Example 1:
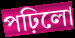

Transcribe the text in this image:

পঢ়িলো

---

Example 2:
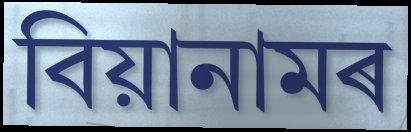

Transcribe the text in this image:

বিয়ানামৰ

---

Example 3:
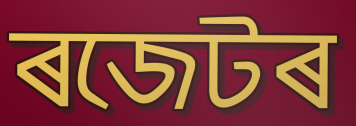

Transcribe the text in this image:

ৰজেটৰ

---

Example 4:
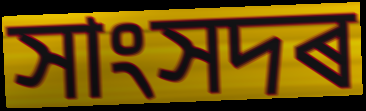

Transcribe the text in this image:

সাংসদৰ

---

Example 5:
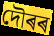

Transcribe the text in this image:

দৌৰৰ